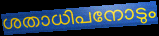
ശതാധിപനോടും